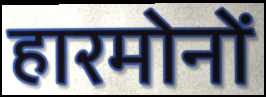
हारमोनों